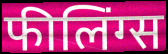
फीलिंग्स